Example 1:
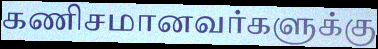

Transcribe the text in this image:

கணிசமானவர்களுக்கு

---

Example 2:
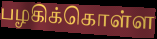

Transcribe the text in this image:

பழகிக்கொள்ள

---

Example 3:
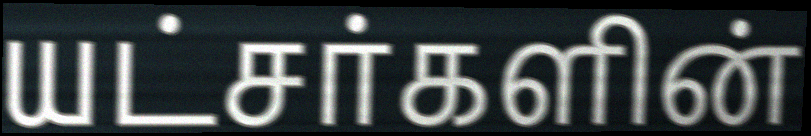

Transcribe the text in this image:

யட்சர்களின்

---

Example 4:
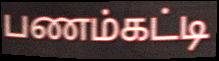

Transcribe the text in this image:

பணம்கட்டி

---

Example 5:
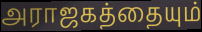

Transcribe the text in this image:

அராஜகத்தையும்